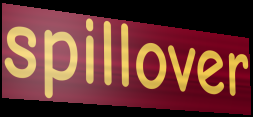
spillover